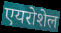
एयरोशेल